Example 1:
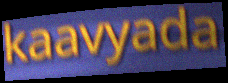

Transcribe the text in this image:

kaavyada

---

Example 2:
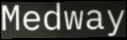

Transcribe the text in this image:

Medway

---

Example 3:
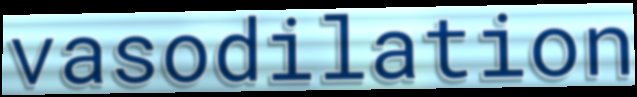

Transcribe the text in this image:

vasodilation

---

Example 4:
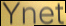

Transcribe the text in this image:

Ynet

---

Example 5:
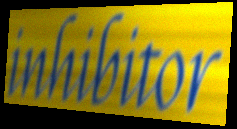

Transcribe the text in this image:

inhibitor